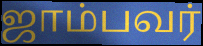
ஜாம்பவர்